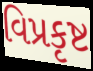
વિપ્રકૃષ્ટ